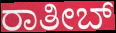
ರಾತೀಬ್